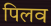
पिलव